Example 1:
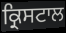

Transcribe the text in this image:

ਕ੍ਰਿਸਟਾਲ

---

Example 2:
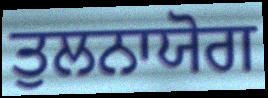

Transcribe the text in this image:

ਤੁਲਨਾਯੋਗ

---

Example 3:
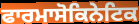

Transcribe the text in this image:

ਫਾਰਮਾਸੋਕਿਨੇਟਿਕ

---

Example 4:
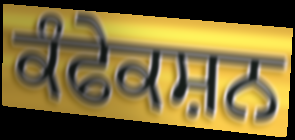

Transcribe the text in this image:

ਕੰਫੇਕਸ਼ਨ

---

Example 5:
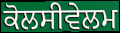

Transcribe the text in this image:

ਕੋਲਸੀਵੇਲਮ